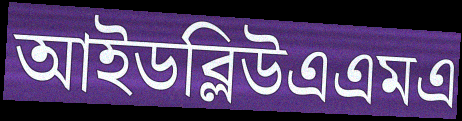
আইডব্লিউএএমএ